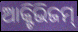
ଆକ୍ଟିଭିଜମ୍